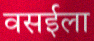
वसईला